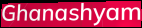
Ghanashyam